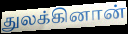
துலக்கினான்